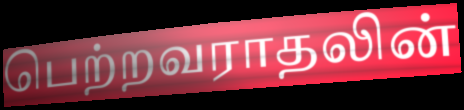
பெற்றவராதலின்